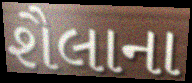
શૈલાના